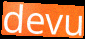
devu